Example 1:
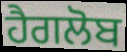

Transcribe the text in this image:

ਹੈਗਲੋਬ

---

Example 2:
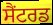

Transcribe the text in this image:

ਸੈਂਟਰਡ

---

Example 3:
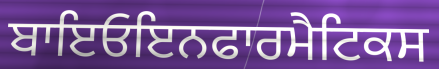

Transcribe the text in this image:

ਬਾਇਓਇਨਫਾਰਮੈਟਿਕਸ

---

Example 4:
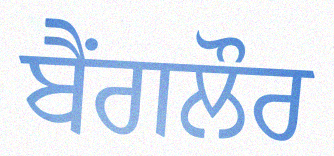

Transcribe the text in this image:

ਬੈੰਗਲੌਰ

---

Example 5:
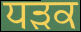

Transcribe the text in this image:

ਧਡ਼ਕ